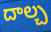
దాల్చ